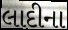
લાદીના